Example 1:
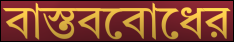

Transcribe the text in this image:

বাস্তববোধের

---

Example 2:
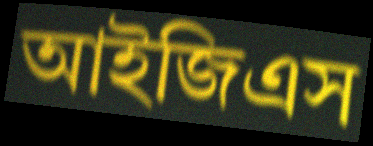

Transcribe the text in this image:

আইজিএস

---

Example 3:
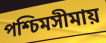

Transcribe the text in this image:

পশ্চিমসীমায়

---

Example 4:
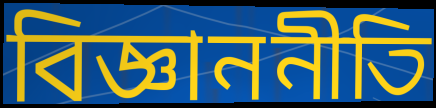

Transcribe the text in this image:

বিজ্ঞাননীতি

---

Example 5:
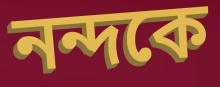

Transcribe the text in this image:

নন্দকে